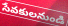
సేవకులనుండి